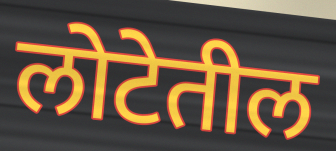
लोटेतील